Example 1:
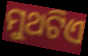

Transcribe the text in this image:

ମୁଥଟିଏ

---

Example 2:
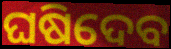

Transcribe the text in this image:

ଘଷିଦେବ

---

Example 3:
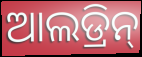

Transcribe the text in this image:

ଆଲଡ୍ରିନ୍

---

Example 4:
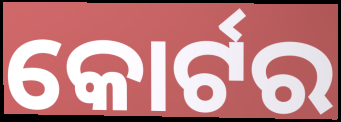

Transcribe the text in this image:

କୋର୍ଟର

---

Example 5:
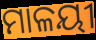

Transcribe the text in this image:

ମାଳୟୀ